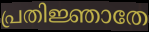
പ്രതിജ്ഞാതേ